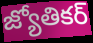
జ్యోతికర్